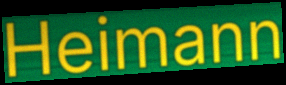
Heimann